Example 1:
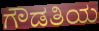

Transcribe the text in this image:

ಗೌಡತಿಯ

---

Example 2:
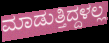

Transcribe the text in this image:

ಮಾಡುತ್ತಿದ್ದಳಲ್ಲ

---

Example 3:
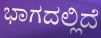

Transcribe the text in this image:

ಭಾಗದಲ್ಲಿದೆ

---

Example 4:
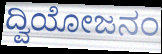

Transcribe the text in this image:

ದ್ವಿಯೋಜನಂ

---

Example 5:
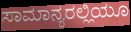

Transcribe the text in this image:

ಸಾಮಾನ್ಯರಲ್ಲಿಯೂ